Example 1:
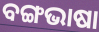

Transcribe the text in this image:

ବଙ୍ଗଭାଷା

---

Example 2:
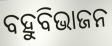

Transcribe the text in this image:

ବହୁବିଭାଜନ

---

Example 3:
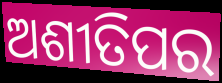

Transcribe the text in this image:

ଅଶୀତିପର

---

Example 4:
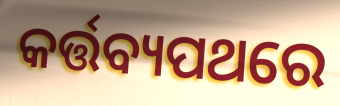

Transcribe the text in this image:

କର୍ତ୍ତବ୍ୟପଥରେ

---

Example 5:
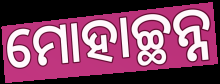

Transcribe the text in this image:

ମୋହାଚ୍ଛନ୍ନ